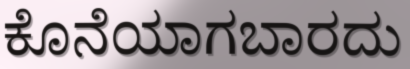
ಕೊನೆಯಾಗಬಾರದು